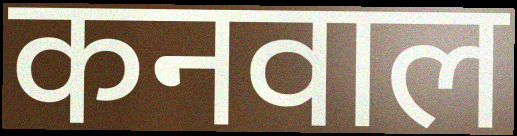
कनवाल